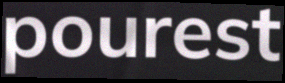
pourest